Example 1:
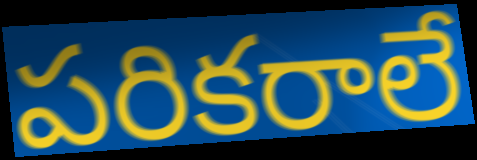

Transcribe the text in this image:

పరికరాలే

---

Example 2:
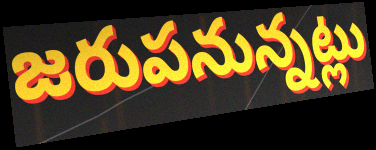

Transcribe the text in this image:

జరుపనున్నట్లు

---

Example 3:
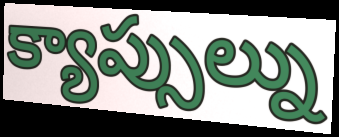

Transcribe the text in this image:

క్యాప్సుల్ను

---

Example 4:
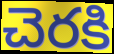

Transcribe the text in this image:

చెరకి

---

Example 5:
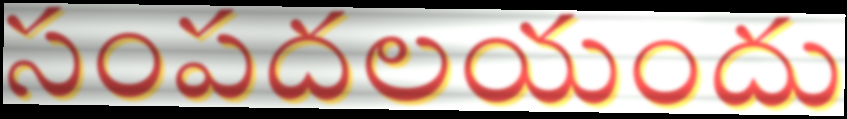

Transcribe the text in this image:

సంపదలయందు